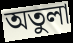
অতুলা